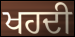
ਖਹਦੀ